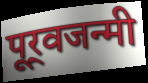
पूर्वजन्मी